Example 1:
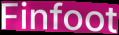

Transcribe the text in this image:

Finfoot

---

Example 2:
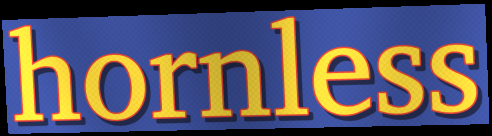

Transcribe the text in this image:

hornless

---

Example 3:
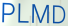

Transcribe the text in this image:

PLMD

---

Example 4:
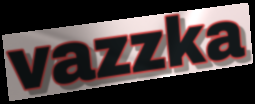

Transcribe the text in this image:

vazzka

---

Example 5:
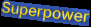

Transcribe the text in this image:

Superpower